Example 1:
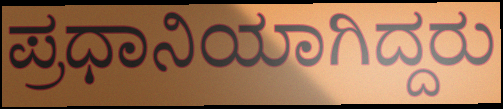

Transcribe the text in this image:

ಪ್ರಧಾನಿಯಾಗಿದ್ದರು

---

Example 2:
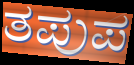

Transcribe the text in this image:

ತಪುಪ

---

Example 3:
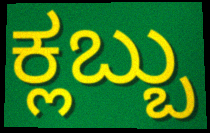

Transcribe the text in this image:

ಕ್ಲಬ್ಬು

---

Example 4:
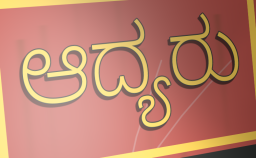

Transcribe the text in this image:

ಆದ್ಯರು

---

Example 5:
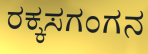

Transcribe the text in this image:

ರಕ್ಕಸಗಂಗನ